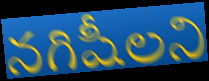
నగిషీలని